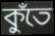
কুঁতে